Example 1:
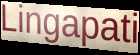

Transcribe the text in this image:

Lingapati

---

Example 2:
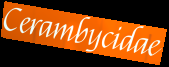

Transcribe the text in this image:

Cerambycidae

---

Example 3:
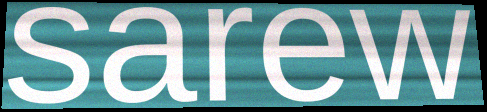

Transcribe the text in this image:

sarew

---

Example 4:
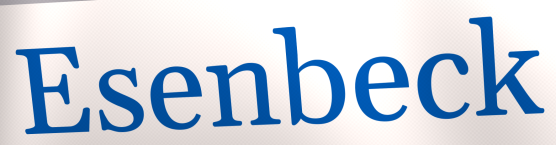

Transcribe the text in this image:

Esenbeck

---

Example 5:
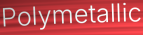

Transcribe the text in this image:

Polymetallic